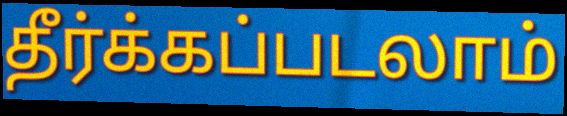
தீர்க்கப்படலாம்